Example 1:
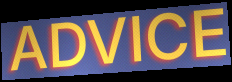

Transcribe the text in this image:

ADVICE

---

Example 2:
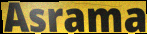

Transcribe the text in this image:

Asrama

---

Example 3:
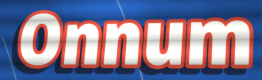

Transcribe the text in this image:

Onnum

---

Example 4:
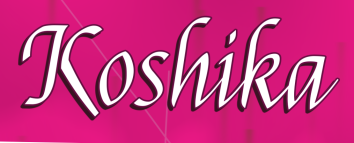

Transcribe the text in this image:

Koshika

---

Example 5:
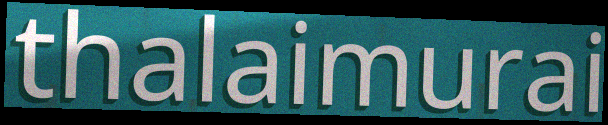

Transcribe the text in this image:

thalaimurai